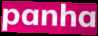
panha